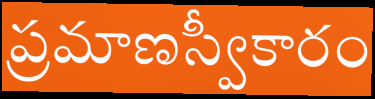
ప్రమాణస్వీకారం